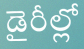
డైరీల్లో